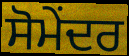
ਸੋਮੇਂਦਰ